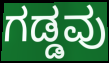
ಗಡ್ಡವು